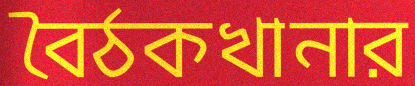
বৈঠকখানার